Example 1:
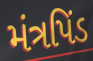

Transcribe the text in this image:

મંત્રપિંડ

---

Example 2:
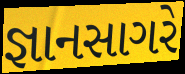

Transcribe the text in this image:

જ્ઞાનસાગરે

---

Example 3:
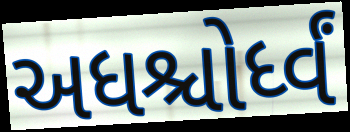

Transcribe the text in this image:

અધશ્ચોર્ધ્વં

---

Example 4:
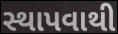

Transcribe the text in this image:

સ્થાપવાથી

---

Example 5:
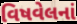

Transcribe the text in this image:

વિષવેલનાં